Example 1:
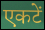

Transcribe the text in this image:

एकटें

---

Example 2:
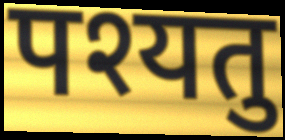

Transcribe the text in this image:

पश्यतु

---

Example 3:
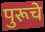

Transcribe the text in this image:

पुरूचे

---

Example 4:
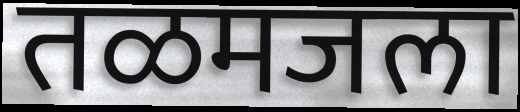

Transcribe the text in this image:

तळमजला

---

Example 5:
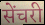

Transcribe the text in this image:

सेंचरी